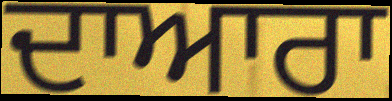
ਦਾਆਰਾ